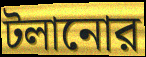
টলানোর